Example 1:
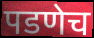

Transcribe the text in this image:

पडणेच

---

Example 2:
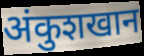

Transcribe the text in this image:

अंकुशखान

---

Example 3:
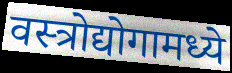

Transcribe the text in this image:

वस्त्रोद्योगामध्ये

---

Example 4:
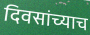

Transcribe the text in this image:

दिवसांच्याच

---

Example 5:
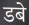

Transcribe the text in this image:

डबे